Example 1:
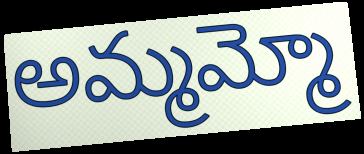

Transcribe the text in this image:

అమ్మమ్మో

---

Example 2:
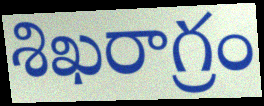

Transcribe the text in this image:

శిఖరాగ్రం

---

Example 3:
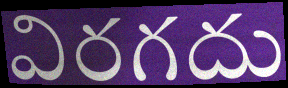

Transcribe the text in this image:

విరగదు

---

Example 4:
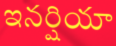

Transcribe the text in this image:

ఇనర్షియా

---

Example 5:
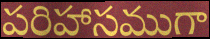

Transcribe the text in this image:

పరిహాసముగా